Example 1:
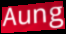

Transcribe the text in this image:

Aung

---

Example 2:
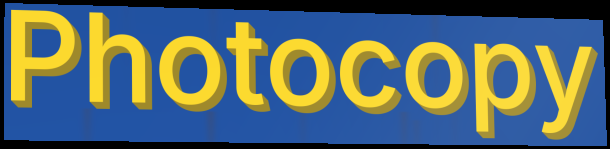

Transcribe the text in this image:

Photocopy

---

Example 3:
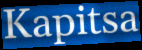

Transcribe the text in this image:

Kapitsa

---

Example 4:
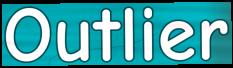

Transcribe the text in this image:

Outlier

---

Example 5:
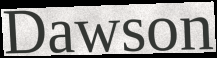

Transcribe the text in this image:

Dawson